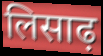
लिसाढ़